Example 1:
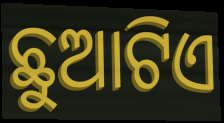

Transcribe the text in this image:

ଛୁଆଟିଏ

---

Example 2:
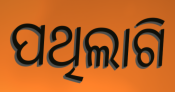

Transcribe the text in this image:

ପଥିଲାଗି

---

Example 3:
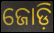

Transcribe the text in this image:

ଜୋଡ଼ି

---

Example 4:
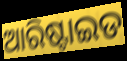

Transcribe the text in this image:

ଆରିଷ୍ଟାଇଡ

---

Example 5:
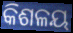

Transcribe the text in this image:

କିଶଳୟ